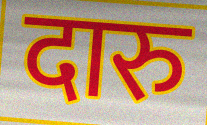
दारु